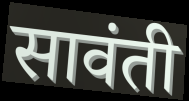
सावंती